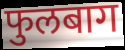
फुलबाग